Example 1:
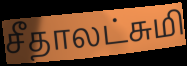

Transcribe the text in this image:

சீதாலட்சுமி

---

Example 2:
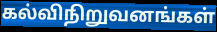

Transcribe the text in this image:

கல்விநிறுவனங்கள்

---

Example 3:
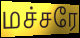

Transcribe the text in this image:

மச்சரே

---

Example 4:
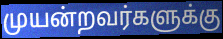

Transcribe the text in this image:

முயன்றவர்களுக்கு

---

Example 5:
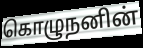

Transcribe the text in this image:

கொழுநனின்